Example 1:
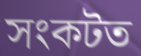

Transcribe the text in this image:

সংকটত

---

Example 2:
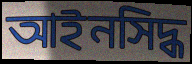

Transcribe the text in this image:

আইনসিদ্ধ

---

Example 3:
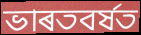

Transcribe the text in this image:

ভাৰতবৰ্ষত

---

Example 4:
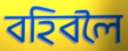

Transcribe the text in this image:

বহিবলৈ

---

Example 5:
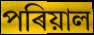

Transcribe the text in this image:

পৰিয়াল